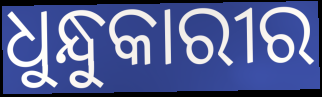
ଧୁନ୍ଧୁକାରୀର